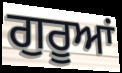
ਗੁਰੂਆਂ